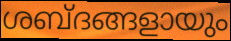
ശബ്ദങ്ങളായും